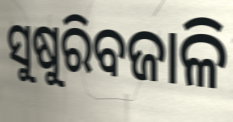
ସୁଷୁରିବଜାଳି